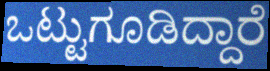
ಒಟ್ಟುಗೂಡಿದ್ದಾರೆ